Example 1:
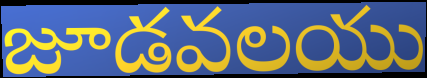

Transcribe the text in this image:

జూడవలయు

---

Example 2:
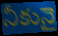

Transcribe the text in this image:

నీకునై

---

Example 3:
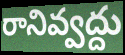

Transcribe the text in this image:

రానివ్వద్దు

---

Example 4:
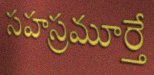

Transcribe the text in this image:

సహస్రమూర్తే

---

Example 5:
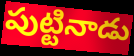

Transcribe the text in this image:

పుట్టినాడు